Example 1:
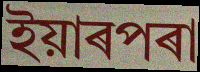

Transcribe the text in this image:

ইয়াৰপৰা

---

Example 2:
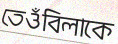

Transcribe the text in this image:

তেওঁবিলাকে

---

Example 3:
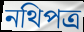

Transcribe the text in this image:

নথিপত্ৰ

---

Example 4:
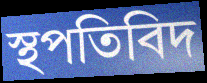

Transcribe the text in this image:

স্থপতিবিদ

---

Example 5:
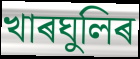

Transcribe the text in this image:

খাৰঘুলিৰ